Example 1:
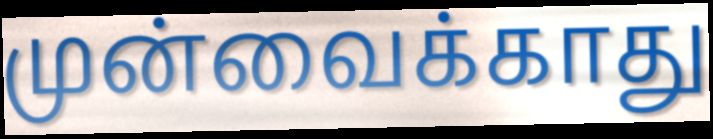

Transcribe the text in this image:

முன்வைக்காது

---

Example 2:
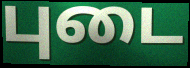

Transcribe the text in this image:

புடை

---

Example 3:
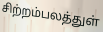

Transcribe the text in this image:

சிற்றம்பலத்துள்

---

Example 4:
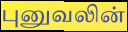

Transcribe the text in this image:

புனுவலின்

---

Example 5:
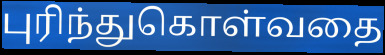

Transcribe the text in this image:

புரிந்துகொள்வதை